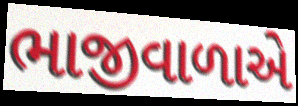
ભાજીવાળાએ